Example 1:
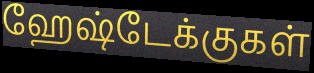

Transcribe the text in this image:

ஹேஷ்டேக்குகள்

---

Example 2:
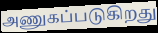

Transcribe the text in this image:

அணுகப்படுகிறது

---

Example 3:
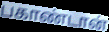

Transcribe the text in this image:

பகாண்டான்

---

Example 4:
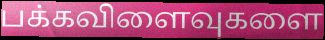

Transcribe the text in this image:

பக்கவிளைவுகளை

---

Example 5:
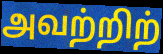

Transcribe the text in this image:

அவற்றிற்